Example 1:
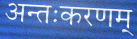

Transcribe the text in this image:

अन्तःकरणम्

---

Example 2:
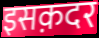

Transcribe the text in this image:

इसक़दर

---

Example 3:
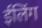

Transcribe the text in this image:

ईलिंग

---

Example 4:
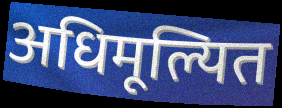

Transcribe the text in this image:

अधिमूल्यित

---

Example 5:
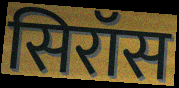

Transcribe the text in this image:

सिरॉस